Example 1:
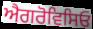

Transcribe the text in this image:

ਐਗਰੋਵਿਸਿਓ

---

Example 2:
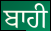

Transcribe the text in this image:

ਬਾਹੀ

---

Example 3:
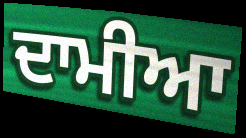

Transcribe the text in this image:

ਦਾਮੀਆ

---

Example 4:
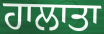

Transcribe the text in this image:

ਹਾਲਾਤਾ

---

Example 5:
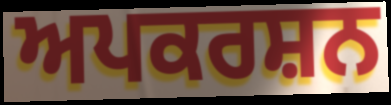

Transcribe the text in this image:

ਅਪਕਰਸ਼ਨ